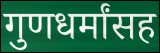
गुणधर्मांसह